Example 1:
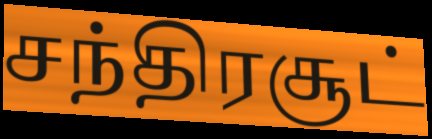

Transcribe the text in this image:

சந்திரசூட்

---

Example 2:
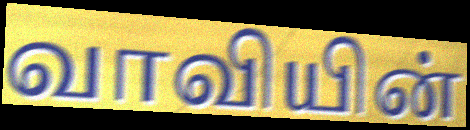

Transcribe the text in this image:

வாவியின்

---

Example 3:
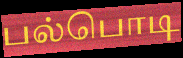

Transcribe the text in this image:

பல்பொடி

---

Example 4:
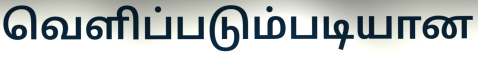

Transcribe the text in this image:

வெளிப்படும்படியான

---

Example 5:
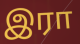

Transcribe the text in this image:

இரா